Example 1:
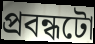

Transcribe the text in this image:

প্ৰবন্ধটো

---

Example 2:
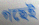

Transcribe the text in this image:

গছেই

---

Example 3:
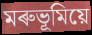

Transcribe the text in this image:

মৰুভূমিয়ে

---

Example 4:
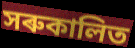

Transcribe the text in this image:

সৰুকালিত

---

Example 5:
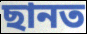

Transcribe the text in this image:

ছানত